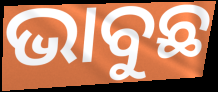
ଭାବୁଛ